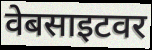
वेबसाइटवर